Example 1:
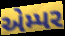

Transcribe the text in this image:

એમ્પર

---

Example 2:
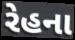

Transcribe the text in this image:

રેહના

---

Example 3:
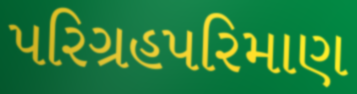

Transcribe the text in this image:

પરિગ્રહપરિમાણ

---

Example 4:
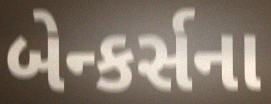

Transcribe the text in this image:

બેન્કર્સના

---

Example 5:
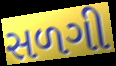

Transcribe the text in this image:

સળગી